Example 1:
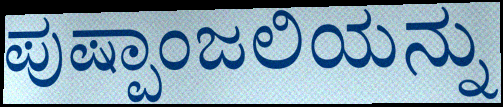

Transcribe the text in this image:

ಪುಷ್ಪಾಂಜಲಿಯನ್ನು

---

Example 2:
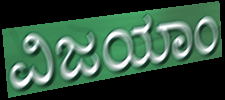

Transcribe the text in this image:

ವಿಜಯಾಂ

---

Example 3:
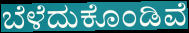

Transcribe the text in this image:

ಬೆಳೆದುಕೊಂಡಿವೆ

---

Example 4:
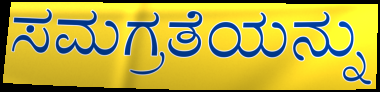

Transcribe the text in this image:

ಸಮಗ್ರತೆಯನ್ನು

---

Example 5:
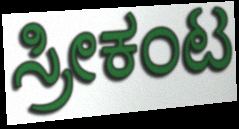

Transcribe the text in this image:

ಸ್ರೀಕಂಟ